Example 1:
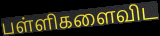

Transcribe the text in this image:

பள்ளிகளைவிட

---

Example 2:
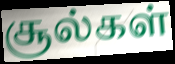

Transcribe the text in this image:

சூல்கள்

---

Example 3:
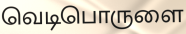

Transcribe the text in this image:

வெடிபொருளை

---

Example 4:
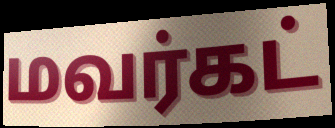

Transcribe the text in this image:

மவர்கட்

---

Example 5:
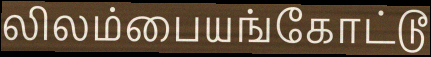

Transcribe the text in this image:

லிலம்பையங்கோட்டூ